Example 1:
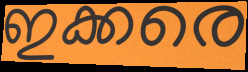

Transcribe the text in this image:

ഇക്കരെ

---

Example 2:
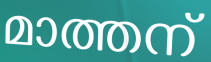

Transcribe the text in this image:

മാത്തന്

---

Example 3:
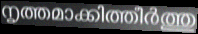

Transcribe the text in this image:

നൃത്തമാക്കിത്തീർത്തു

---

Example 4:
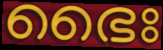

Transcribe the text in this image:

ഭൈഃ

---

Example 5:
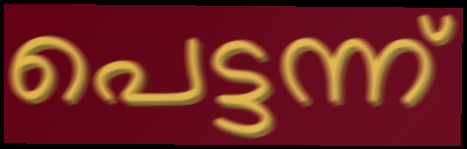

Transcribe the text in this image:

പെട്ടന്ന്